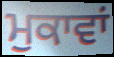
ਮੁਕਾਵਾਂ